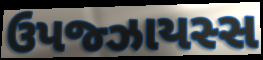
ઉપજ્ઝાયસ્સ